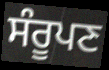
ਸੰਰੂਪਣ